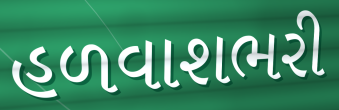
હળવાશભરી